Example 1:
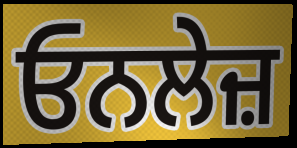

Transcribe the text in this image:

ਓਨਲੇਜ਼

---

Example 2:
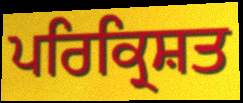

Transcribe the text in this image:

ਪਰਿਕ੍ਰਿਸ਼ਤ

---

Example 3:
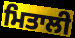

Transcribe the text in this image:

ਮਿਤਾਲੀ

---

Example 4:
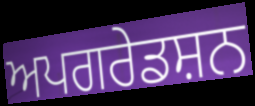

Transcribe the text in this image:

ਅਪਗਰੇਡਸ਼ਨ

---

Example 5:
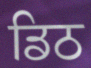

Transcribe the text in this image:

ਡਿਠ